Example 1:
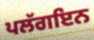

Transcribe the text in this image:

ਪਲੱਗਇਨ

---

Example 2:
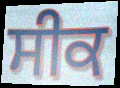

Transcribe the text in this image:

ਸੀਕ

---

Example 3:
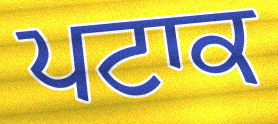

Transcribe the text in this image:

ਪਟਾਕ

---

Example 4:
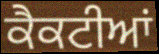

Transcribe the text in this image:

ਕੈਕਟੀਆਂ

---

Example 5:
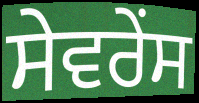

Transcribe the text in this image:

ਸੇਵਰੇਂਸ